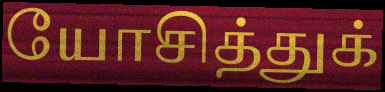
யோசித்துக்